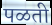
पळती